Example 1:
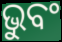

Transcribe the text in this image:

ଭୁବଂ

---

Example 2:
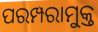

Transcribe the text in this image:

ପରମ୍ପରାମୁକ୍ତ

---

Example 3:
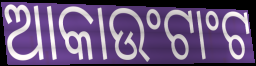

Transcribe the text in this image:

ଆକାଉଂଟାଂଟ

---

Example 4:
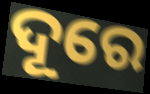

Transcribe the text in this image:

ଦୂରେ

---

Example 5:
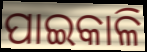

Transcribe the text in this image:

ପାଇକାଳି